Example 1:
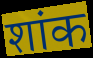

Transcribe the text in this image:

शांक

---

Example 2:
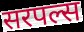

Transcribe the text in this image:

सरपल्स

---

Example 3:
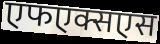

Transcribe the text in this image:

एफएक्सएस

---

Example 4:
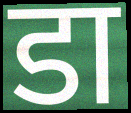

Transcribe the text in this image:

डा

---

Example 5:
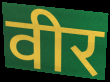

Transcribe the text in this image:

वीर